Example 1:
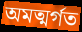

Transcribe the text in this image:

অমত্মর্গত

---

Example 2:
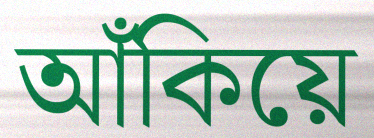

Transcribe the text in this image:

আঁকিয়ে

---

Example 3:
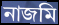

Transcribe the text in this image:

নাজমি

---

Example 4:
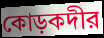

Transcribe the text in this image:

কোড়কদীর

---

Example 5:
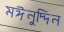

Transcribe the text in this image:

মঈনুদ্দিন